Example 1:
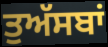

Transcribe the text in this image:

ਤੁਅੱਸਬਾਂ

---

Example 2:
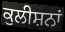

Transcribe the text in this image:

ਕੁਲੀਸ਼ਨਾਂ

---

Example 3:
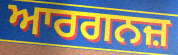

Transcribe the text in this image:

ਆਰਗਨਜ਼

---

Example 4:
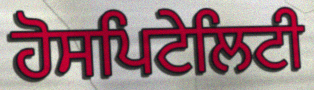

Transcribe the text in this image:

ਹੋਸਪਿਟੇਲਿਟੀ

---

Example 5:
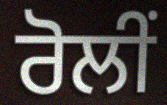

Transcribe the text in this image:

ਰੋਲੀਂ